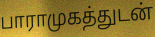
பாராமுகத்துடன்